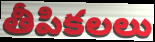
తీపికలలు